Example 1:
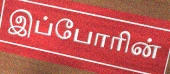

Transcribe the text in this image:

இப்போரின்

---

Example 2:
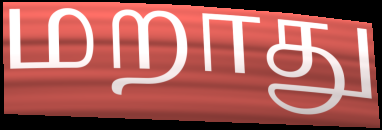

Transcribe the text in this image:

மறாது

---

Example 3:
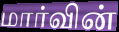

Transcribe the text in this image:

மார்வின்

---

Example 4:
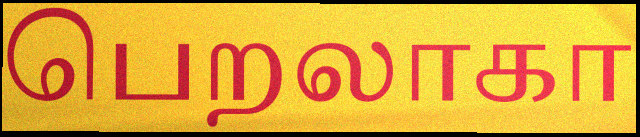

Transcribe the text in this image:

பெறலாகா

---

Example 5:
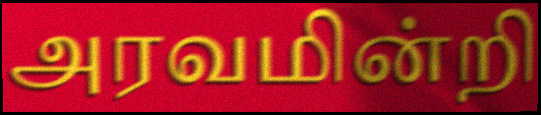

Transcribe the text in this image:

அரவமின்றி